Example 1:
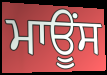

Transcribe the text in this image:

ਮਾਊਂਸ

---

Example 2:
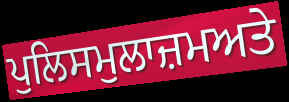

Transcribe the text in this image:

ਪੁਲਿਸਮੁਲਾਜ਼ਮਅਤੇ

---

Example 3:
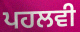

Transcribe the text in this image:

ਪਹਲਵੀ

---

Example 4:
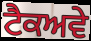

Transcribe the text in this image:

ਟੈਕਅਵੇ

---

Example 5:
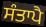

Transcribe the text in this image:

ਸੰਤਾਪੈ